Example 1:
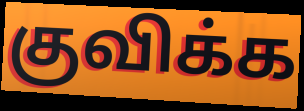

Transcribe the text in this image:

குவிக்க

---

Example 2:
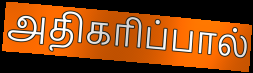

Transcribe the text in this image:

அதிகரிப்பால்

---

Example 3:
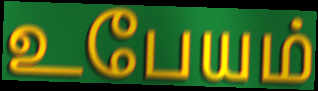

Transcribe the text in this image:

உபேயம்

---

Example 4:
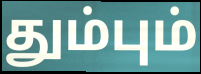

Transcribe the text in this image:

தும்பும்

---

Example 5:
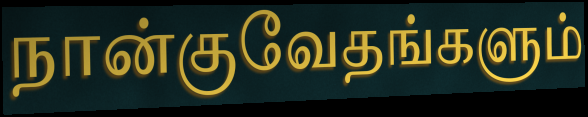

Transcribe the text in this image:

நான்குவேதங்களும்